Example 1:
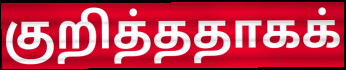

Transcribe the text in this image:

குறித்ததாகக்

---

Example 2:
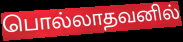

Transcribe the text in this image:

பொல்லாதவனில்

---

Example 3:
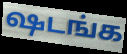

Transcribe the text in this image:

ஷடங்க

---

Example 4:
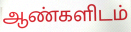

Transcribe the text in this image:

ஆண்களிடம்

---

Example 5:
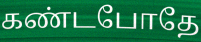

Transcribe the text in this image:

கண்டபோதே